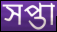
সপ্তা